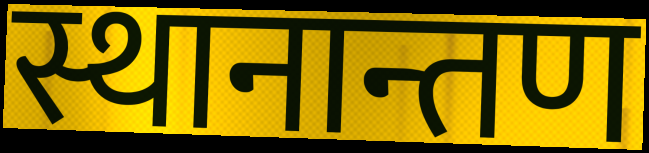
स्थानान्तण